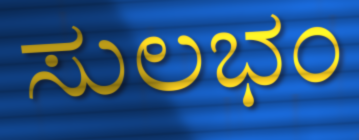
ಸುಲಭಂ